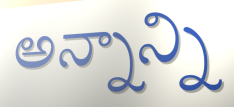
అన్నాన్ని